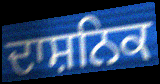
ਦਾਸ਼ਨਿਕ